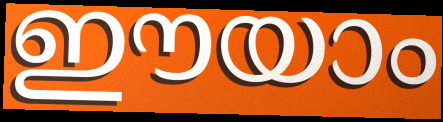
ഈയാം